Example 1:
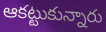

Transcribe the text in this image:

ఆకట్టుకున్నారు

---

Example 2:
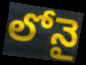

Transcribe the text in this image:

లోనై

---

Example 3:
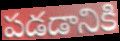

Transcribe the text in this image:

పడడానికి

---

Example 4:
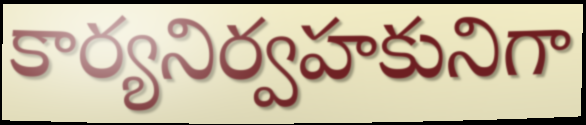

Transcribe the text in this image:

కార్యనిర్వహకునిగా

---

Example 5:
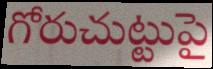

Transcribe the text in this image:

గోరుచుట్టుపై